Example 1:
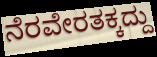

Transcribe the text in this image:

ನೆರವೇರತಕ್ಕದ್ದು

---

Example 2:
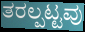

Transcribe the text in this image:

ತರಲ್ಪಟ್ಟವು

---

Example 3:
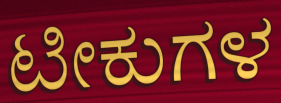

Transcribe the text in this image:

ಟೀಕುಗಳ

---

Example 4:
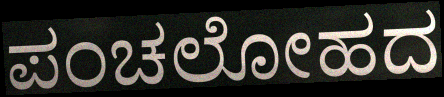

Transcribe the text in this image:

ಪಂಚಲೋಹದ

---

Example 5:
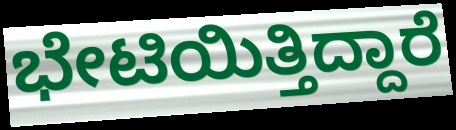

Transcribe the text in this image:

ಭೇಟಿಯಿತ್ತಿದ್ದಾರೆ